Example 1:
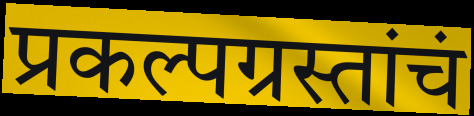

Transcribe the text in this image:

प्रकल्पग्रस्तांचं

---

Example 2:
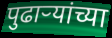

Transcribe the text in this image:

पुढाऱ्यांच्या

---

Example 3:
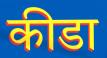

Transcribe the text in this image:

कीडा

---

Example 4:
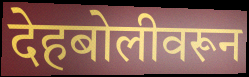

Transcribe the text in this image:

देहबोलीवरून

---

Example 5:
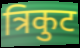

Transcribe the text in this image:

त्रिकुट